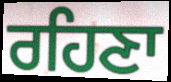
ਰਹਿਣਾ